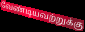
வேண்டியவற்றுக்கு